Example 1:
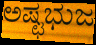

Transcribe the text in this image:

ಅಷ್ಟಭುಜ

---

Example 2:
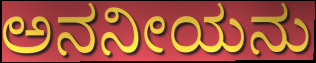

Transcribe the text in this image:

ಅನನೀಯನು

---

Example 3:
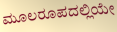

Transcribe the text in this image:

ಮೂಲರೂಪದಲ್ಲಿಯೇ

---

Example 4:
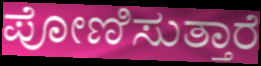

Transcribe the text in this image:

ಪೋಣಿಸುತ್ತಾರೆ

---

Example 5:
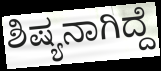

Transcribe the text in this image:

ಶಿಷ್ಯನಾಗಿದ್ದೆ